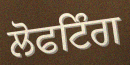
ਲੋਫਟਿੰਗ